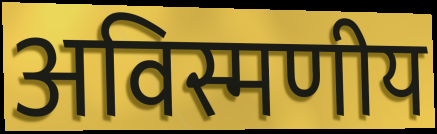
अविस्मणीय